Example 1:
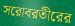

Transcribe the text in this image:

সরোবরতীরের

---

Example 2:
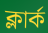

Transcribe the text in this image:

ক্লার্ক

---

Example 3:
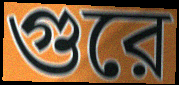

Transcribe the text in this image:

গুরে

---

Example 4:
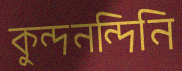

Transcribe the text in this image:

কুন্দনন্দিনি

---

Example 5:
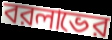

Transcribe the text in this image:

বরলাভের